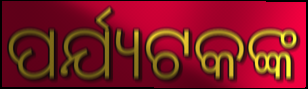
ପର୍ଯ୍ୟଟକଙ୍କ